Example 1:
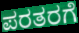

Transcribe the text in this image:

ಪರತರಗೆ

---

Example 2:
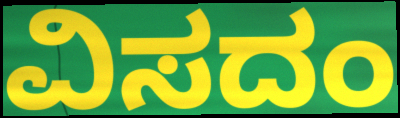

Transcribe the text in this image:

ವಿಸದಂ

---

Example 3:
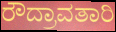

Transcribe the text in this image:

ರೌದ್ರಾವತಾರಿ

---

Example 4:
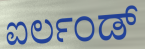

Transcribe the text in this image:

ಐರ್ಲಂಡ್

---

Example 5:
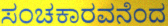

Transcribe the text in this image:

ಸಂಚಕಾರವನೆಂದ